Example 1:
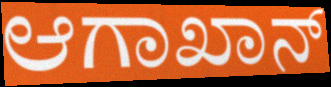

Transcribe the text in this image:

ಆಗಾಖಾನ್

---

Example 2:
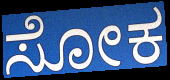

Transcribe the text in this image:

ಸೋಕ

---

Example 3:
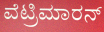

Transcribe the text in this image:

ವೆಟ್ರಿಮಾರನ್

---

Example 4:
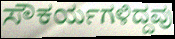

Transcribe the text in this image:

ಸೌಕರ್ಯಗಳಿದ್ದವು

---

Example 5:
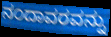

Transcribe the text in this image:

ನಂದಾವರವನ್ನು